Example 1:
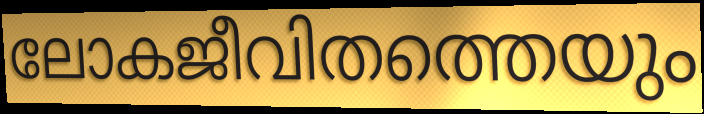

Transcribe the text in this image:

ലോകജീവിതത്തെയും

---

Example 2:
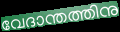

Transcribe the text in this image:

വേദാന്തത്തിനു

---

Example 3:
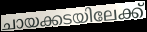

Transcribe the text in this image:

ചായക്കടയിലേക്ക്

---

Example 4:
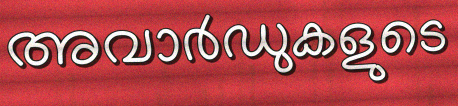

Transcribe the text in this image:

അവാർഡുകളുടെ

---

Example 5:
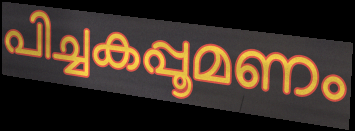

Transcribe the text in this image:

പിച്ചകപ്പൂമണം